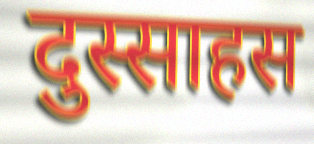
दुस्साहस